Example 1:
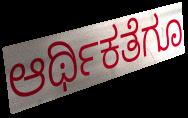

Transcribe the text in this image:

ಆರ್ಥಿಕತೆಗೂ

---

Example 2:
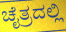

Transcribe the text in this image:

ಚೈತ್ರದಲ್ಲಿ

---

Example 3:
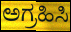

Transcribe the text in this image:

ಅಗ್ರಹಿಸಿ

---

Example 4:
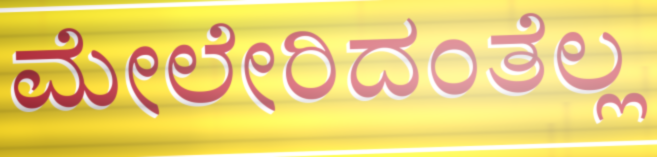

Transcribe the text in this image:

ಮೇಲೇರಿದಂತೆಲ್ಲ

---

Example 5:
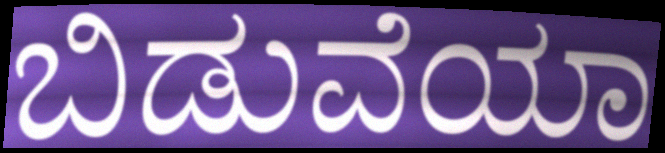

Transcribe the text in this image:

ಬಿಡುವೆಯಾ